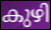
കുഴി